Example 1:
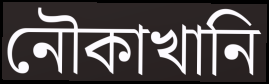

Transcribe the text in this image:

নৌকাখানি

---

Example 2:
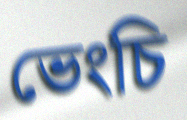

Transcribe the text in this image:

ভেংচি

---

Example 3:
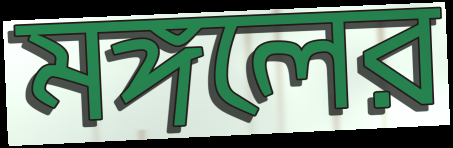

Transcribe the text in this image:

মঙ্গলের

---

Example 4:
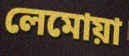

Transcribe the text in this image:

লেমোয়া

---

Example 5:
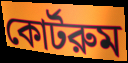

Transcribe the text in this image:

কোর্টরুম